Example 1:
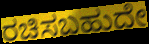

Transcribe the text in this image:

ರಚಿಸಬಹುದೇ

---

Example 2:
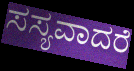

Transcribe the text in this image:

ಸಸ್ಯವಾದರೆ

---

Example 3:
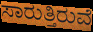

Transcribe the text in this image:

ಸಾರುತ್ತಿರುವೆ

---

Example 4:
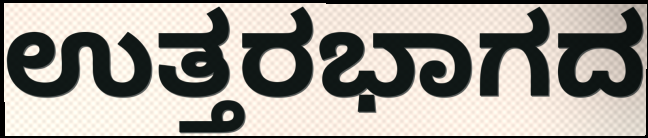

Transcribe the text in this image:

ಉತ್ತರಭಾಗದ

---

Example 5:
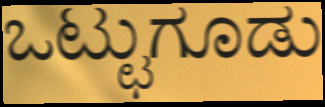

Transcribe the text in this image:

ಒಟ್ಟುಗೂಡು